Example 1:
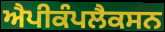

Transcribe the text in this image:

ਐਪੀਕੰਪਲੈਕਸਨ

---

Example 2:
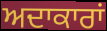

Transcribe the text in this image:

ਅਦਾਕਾਰਾਂ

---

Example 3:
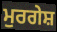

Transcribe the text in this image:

ਮੁਰਗੇਸ਼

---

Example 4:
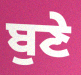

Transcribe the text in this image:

ਬੁਣੇ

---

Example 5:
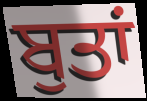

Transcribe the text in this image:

ਬੁਤਾਂ